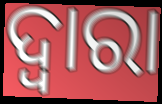
ଦ୍ବାରା